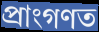
প্ৰাংগণত